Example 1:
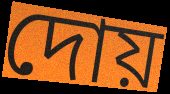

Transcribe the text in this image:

দোয়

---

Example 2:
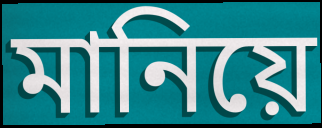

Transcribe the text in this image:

মানিয়ে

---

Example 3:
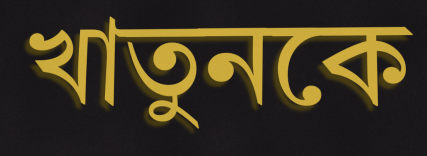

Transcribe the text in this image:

খাতুনকে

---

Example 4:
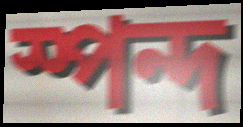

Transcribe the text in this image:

স্পন্দ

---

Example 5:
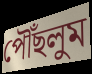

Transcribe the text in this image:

পৌঁছলুম